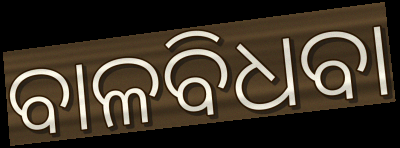
ବାଳବିଧବା